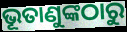
ଭୂତାଣୁଙ୍କଠାରୁ